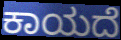
ಕಾಯದೆ